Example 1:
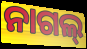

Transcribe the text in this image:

ନାଗଲ୍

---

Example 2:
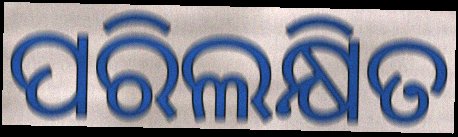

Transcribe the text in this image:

ପରିଲକ୍ଷିତ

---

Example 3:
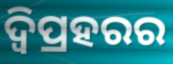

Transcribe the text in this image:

ଦ୍ବିପ୍ରହରର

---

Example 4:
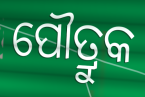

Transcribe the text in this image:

ପୌତ୍ରୁକ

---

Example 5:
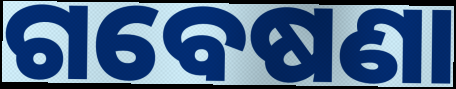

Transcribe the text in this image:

ଗବେଷଣା